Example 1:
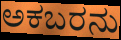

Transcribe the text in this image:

ಅಕಬರನು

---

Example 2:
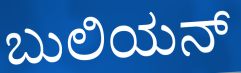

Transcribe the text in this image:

ಬುಲಿಯನ್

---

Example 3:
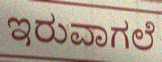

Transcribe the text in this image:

ಇರುವಾಗಲೆ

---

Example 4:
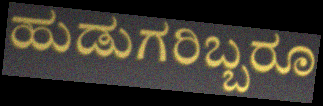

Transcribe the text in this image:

ಹುಡುಗರಿಬ್ಬರೂ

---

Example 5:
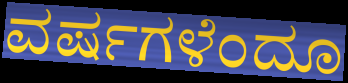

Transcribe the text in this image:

ವರ್ಷಗಳೆಂದೂ